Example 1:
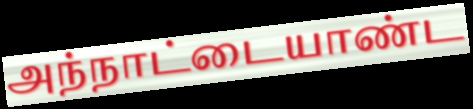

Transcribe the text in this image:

அந்நாட்டையாண்ட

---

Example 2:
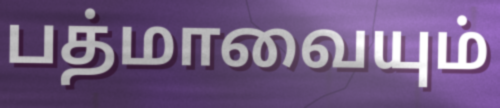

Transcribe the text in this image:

பத்மாவையும்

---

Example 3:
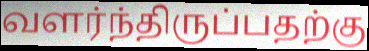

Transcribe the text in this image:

வளர்ந்திருப்பதற்கு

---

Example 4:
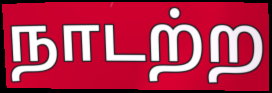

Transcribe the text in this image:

நாடற்ற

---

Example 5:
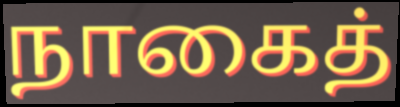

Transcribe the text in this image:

நாகைத்